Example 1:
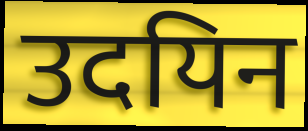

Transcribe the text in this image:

उदयिन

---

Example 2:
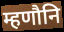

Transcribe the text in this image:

म्हणौनि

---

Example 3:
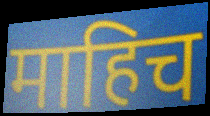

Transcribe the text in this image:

माहिच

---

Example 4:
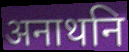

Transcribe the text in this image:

अनाथनि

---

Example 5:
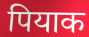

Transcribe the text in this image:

पियाक